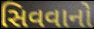
સિવવાનો